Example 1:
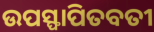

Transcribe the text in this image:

ଉପସ୍ଫାପିତବତୀ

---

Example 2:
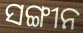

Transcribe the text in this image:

ସଙ୍ଗୀନ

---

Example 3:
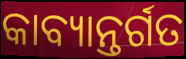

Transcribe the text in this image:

କାବ୍ଯାନ୍ତର୍ଗତ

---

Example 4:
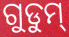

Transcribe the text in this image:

ଗୁଡୁମ୍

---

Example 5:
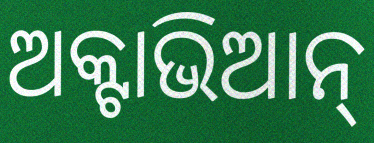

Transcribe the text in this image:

ଅକ୍ଟାଭିଆନ୍